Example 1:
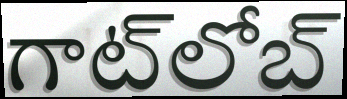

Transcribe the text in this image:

గాట్‍లోబ్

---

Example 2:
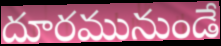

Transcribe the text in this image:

దూరమునుండే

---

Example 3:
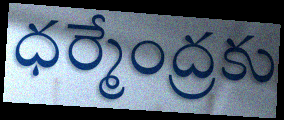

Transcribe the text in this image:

ధర్మేంద్రకు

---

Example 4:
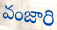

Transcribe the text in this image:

వంజారి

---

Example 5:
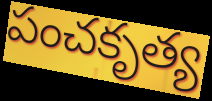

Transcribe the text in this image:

పంచకృత్య